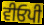
ਵੀਓਪੀ